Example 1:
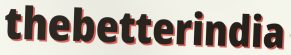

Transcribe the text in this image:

thebetterindia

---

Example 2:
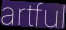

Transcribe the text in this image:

artful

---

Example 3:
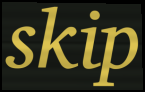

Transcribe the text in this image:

skip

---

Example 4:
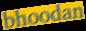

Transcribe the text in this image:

bhoodan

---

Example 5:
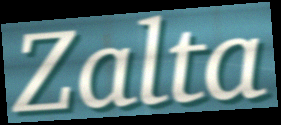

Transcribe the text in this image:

Zalta